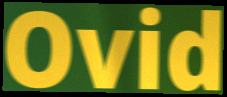
Ovid